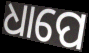
ଧାପେ